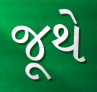
જૂથે